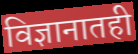
विज्ञानातही